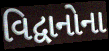
વિદ્વાનોના